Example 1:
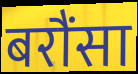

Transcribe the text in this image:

बरौंसा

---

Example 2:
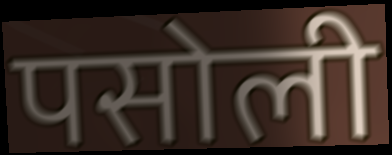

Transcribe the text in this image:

पसोली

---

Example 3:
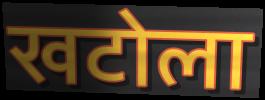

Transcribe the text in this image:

खटोला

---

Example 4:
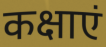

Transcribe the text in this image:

कक्षाएं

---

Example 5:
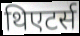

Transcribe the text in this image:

थिएटर्स